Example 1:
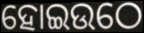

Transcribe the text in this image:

ହୋଇଉଠେ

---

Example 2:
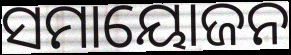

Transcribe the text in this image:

ସମାୟୋଜନ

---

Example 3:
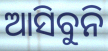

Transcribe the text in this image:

ଆସିବୁନି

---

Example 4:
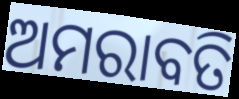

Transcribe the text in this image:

ଅମରାବତି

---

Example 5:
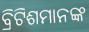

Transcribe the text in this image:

ବ୍ରିଟିଶମାନଙ୍କ